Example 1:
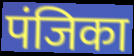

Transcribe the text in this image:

पंजिका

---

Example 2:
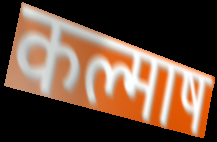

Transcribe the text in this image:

कल्माष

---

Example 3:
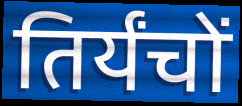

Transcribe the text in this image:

तिर्यंचों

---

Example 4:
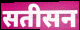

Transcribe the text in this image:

सतीसन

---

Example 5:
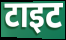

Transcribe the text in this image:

टाइट